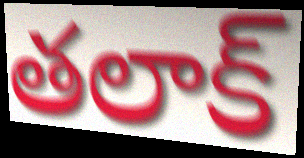
తలాక్